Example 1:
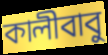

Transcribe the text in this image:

কালীবাবু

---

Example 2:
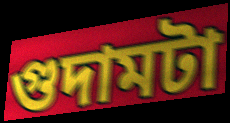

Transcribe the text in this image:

গুদামটা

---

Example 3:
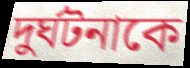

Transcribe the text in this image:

দুর্ঘটনাকে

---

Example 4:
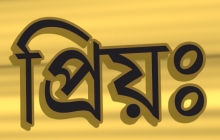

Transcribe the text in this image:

প্রিয়ঃ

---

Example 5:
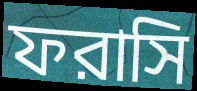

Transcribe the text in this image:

ফরাসি